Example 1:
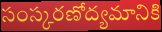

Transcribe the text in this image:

సంస్కరణోద్యమానికి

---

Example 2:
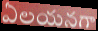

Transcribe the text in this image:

ఏలయనగా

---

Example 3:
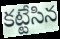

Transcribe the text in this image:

కట్టేసిన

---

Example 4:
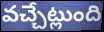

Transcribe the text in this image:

వచ్చేట్లుంది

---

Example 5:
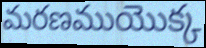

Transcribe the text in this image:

మరణముయొక్క